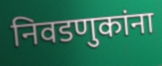
निवडणुकांना